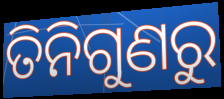
ତିନିଗୁଣରୁ